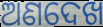
ଅଣଦେଖ